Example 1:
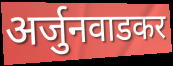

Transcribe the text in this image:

अर्जुनवाडकर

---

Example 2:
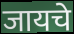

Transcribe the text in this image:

जायचे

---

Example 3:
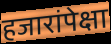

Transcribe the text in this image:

हजारांपेक्षा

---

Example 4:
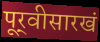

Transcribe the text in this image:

पूर्वीसारखं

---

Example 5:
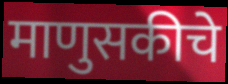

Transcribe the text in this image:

माणुसकीचे